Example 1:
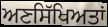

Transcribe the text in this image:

ਅਣਸਿੱਖਿਅਤਾਂ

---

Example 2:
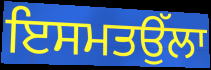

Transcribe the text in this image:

ਇਸਮਤਉੱਲਾ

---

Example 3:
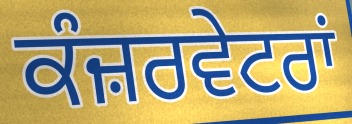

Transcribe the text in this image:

ਕੰਜ਼ਰਵੇਟਰਾਂ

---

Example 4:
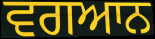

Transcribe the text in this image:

ਵਗਆਨ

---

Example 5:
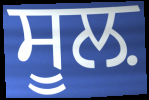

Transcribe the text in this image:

ਸੂਲ਼